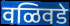
वळिवडे